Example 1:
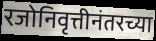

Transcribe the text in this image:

रजोनिवृत्तीनंतरच्या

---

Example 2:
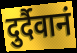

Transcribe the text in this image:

दुर्दैवानं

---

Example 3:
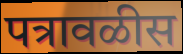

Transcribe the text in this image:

पत्रावळीस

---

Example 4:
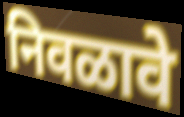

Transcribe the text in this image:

निवळावे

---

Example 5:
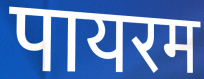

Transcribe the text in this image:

पायरम